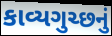
કાવ્યગુચ્છનું